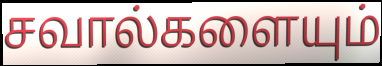
சவால்களையும்